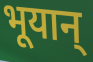
भूयान्